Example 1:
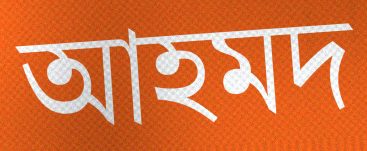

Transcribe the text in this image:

আহমদ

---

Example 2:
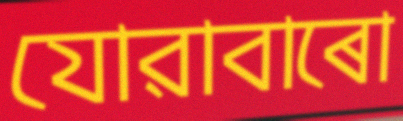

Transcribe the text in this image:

যোৱাবাৰো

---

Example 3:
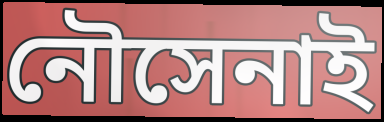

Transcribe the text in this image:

নৌসেনাই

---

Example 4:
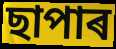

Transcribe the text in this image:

ছাপাৰ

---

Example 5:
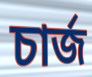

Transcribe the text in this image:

চাৰ্জ